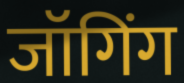
जॉगिंग